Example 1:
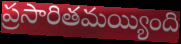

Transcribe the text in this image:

ప్రసారితమయ్యింది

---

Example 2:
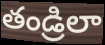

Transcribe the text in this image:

తండ్రిలా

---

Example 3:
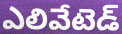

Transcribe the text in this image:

ఎలివేటెడ్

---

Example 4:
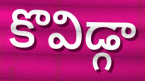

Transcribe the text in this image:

కొవిడ్గా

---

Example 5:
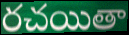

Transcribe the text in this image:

రచయితా